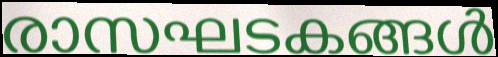
രാസഘടകങ്ങൾ